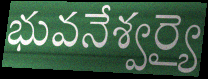
భువనేశ్వర్యై